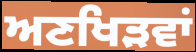
ਅਣਖਿੜਵਾਂ